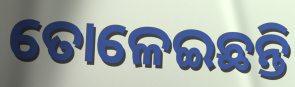
ତୋଳେଇଛନ୍ତି